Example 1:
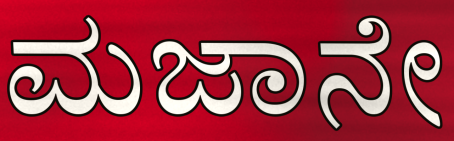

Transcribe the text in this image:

ಮಜಾನೇ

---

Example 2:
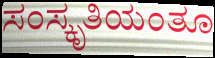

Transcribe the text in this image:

ಸಂಸ್ಕೃತಿಯಂತೂ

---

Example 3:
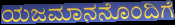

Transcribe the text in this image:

ಯಜಮಾನನೊಂದಿಗೆ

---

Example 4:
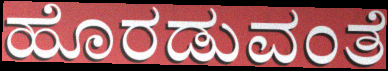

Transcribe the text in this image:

ಹೊರಡುವಂತೆ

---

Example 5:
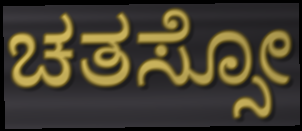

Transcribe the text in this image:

ಚತಸ್ಸೋ